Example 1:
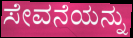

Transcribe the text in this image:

ಸೇವನೆಯನ್ನು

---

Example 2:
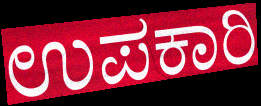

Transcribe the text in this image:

ಉಪಕಾರಿ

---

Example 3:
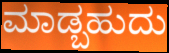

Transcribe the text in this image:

ಮಾಡ್ಬಹುದು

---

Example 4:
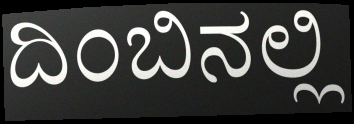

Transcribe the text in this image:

ದಿಂಬಿನಲ್ಲಿ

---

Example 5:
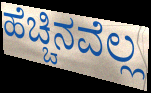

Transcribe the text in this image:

ಹೆಚ್ಚಿನವೆಲ್ಲ